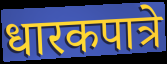
धारकपात्रे